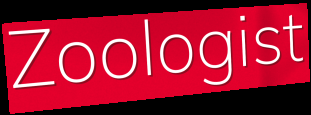
Zoologist